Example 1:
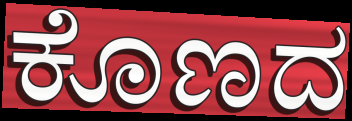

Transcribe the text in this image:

ಕೊಣದ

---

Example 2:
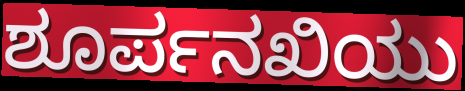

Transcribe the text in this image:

ಶೂರ್ಪನಖಿಯು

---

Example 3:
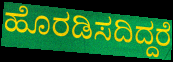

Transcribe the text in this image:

ಹೊರಡಿಸದಿದ್ದರೆ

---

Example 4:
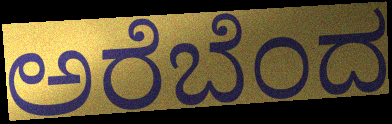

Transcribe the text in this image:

ಅರೆಬೆಂದ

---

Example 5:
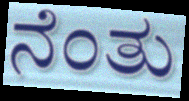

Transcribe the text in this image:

ನೆಂತು